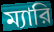
ম্যারি